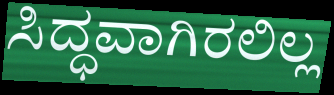
ಸಿದ್ಧವಾಗಿರಲಿಲ್ಲ